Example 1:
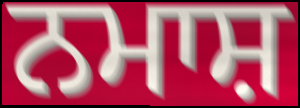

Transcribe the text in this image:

ਨਮਾਸ਼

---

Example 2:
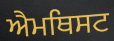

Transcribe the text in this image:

ਐਮਥਿਸਟ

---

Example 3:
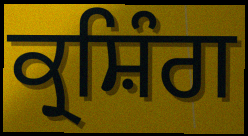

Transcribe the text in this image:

ਕ੍ਰਸ਼ਿੰਗ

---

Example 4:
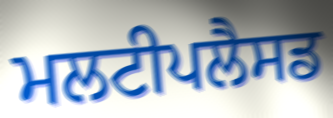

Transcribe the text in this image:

ਮਲਟੀਪਲੈਸਡ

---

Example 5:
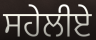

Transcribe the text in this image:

ਸਹੇਲੀਏ